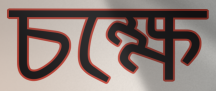
চক্ষে